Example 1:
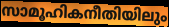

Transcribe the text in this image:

സാമൂഹികനീതിയിലും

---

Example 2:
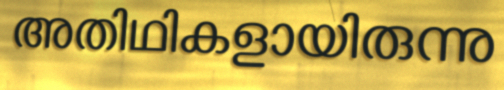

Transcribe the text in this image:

അതിഥികളായിരുന്നു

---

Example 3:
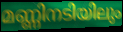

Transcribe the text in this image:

മണ്ണിനടിയിലും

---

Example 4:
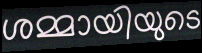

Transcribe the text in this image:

ശമ്മായിയുടെ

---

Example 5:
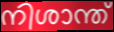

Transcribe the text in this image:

നിശാന്ത്